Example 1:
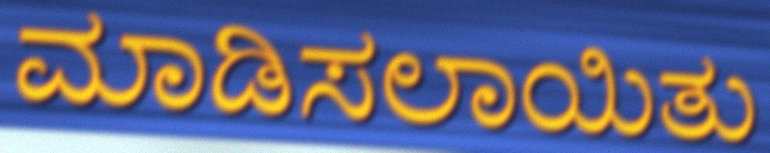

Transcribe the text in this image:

ಮಾಡಿಸಲಾಯಿತು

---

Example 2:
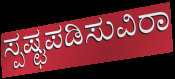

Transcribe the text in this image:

ಸ್ಪಷ್ಟಪಡಿಸುವಿರಾ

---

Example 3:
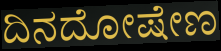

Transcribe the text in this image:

ದಿನದೋಷೇಣ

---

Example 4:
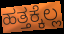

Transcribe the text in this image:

ಹತ್ತಕ್ಕೆಲ್ಲ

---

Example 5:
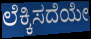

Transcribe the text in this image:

ಲೆಕ್ಕಿಸದೆಯೇ